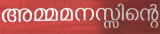
അമ്മമനസ്സിന്റെ